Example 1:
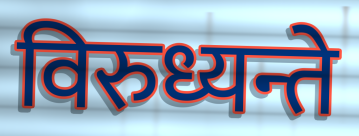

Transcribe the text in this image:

विरुध्यन्ते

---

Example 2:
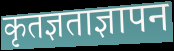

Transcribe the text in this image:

कृतज्ञताज्ञापन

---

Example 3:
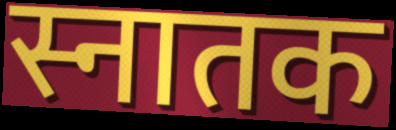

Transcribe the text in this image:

स्नातक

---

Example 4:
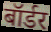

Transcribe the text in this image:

बॉर्डर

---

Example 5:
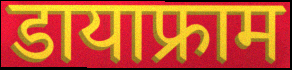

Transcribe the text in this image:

डायाफ्राम